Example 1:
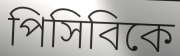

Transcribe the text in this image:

পিসিবিকে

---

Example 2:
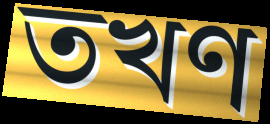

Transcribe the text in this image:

তখণ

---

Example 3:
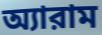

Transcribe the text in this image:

অ্যারাম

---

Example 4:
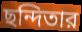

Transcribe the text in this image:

ছন্দিতার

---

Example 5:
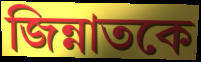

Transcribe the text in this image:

জিন্নাতকে